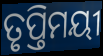
ତୃପ୍ତିମୟୀ